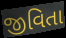
જીવિતા